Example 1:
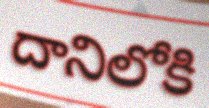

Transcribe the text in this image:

దానిలోకి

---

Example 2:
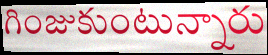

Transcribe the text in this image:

గింజుకుంటున్నారు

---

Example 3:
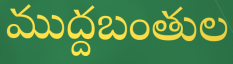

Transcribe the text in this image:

ముద్దబంతుల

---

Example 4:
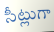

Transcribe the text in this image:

సీట్లుగా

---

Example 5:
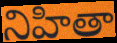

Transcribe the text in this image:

నిహితా